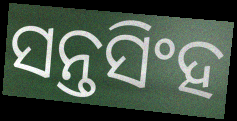
ସନ୍ତସିଂହ